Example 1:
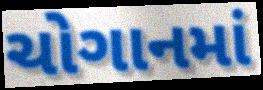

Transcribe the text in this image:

ચોગાનમાં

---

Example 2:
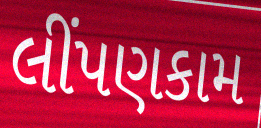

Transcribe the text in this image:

લીંપણકામ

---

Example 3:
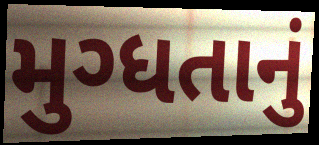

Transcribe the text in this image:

મુગ્ધતાનું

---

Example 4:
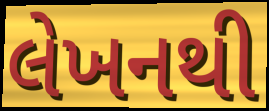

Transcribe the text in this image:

લેખનથી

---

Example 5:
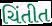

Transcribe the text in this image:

ચિંતીત